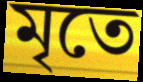
মৃতে